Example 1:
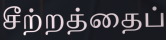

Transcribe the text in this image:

சீற்றத்தைப்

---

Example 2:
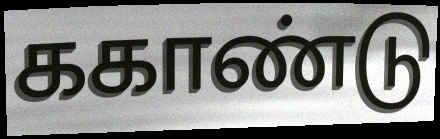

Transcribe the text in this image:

ககாண்டு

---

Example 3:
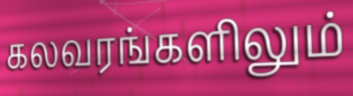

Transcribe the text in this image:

கலவரங்களிலும்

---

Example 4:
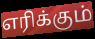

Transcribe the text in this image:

எரிக்கும்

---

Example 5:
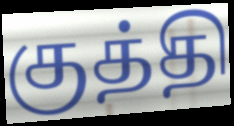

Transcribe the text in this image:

குத்தி